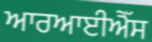
ਆਰਆਈਐੱਸ